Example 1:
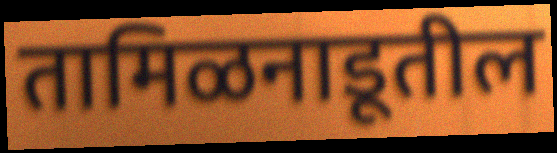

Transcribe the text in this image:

तामिळनाडूतील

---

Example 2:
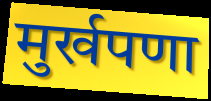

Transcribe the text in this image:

मुर्खपणा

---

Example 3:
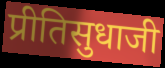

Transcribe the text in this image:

प्रीतिसुधाजी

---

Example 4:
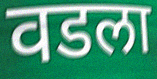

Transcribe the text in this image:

वडला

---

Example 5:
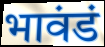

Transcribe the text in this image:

भावंडं